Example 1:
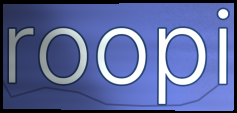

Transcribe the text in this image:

roopi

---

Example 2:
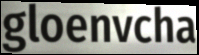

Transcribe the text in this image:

gloenvcha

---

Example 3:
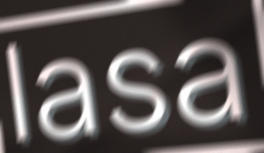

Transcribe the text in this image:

lasa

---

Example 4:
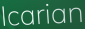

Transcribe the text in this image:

Icarian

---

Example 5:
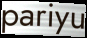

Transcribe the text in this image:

pariyu